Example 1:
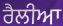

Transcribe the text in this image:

ਰੈਲੀਆ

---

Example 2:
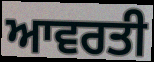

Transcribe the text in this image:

ਆਵਰਤੀ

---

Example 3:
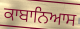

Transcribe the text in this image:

ਕਾਬਾਨਿਆਸ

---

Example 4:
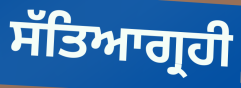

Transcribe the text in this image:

ਸੱਤਿਆਗ੍ਰਹੀ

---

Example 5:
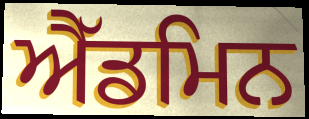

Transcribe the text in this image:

ਐੱਡਮਿਨ